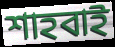
শাহবাই